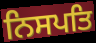
ਨਿਸਪਤਿ